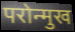
परोन्मुख